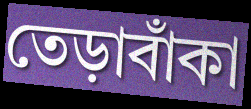
তেড়াবাঁকা